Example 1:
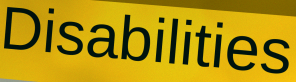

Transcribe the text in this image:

Disabilities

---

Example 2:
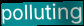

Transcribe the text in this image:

polluting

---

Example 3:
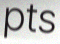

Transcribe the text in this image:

pts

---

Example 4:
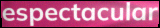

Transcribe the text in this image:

espectacular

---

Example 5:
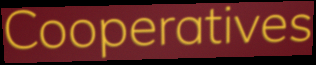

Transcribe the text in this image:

Cooperatives